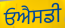
ਓਐਸਡੀ